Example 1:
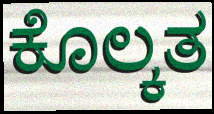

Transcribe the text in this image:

ಕೊಲ್ಕತ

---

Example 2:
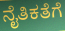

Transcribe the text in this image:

ನೈತಿಕತೆಗೆ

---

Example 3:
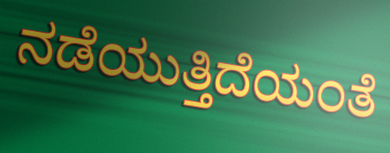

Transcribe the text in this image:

ನಡೆಯುತ್ತಿದೆಯಂತೆ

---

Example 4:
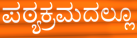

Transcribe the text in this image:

ಪಠ್ಯಕ್ರಮದಲ್ಲೂ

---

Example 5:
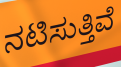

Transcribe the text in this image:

ನಟಿಸುತ್ತಿವೆ